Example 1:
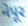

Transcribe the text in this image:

નેપૂર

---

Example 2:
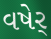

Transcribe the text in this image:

વષેર્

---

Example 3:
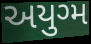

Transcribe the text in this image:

અયુગ્મ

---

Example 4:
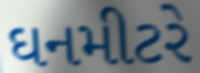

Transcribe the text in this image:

ઘનમીટરે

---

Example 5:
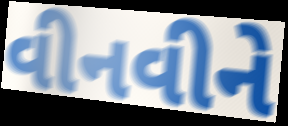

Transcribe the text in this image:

વીનવીને